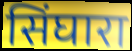
सिंघारा